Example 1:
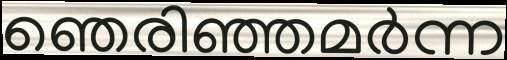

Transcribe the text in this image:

ഞെരിഞ്ഞമർന്ന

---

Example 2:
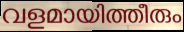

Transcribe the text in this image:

വളമായിത്തീരും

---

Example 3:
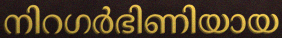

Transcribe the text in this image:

നിറഗർഭിണിയായ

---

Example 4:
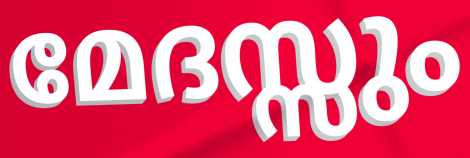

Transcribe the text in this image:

മേദസ്സും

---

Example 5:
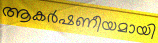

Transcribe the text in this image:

ആകർഷണീയമായി